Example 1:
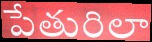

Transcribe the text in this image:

పేతురిలా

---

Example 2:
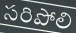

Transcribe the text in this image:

సరిపోలి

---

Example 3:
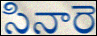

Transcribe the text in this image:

సినారె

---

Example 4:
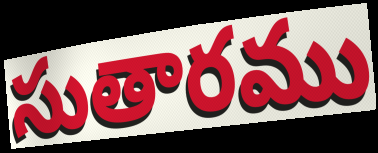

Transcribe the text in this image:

సుతారము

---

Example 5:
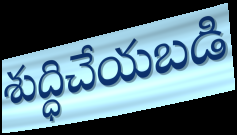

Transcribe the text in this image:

శుద్ధిచేయబడి